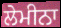
ਲੇਮੀਨਾ